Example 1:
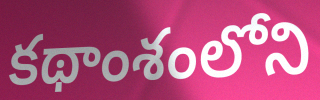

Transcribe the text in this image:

కథాంశంలోని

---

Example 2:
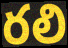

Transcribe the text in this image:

రలి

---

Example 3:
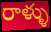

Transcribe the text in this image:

రాళ్ళు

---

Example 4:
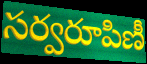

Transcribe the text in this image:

సర్వరూపిణీ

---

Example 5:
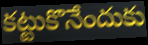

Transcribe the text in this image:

కట్టుకొనేందుకు